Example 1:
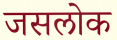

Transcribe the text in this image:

जसलोक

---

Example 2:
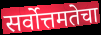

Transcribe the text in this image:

सर्वोत्तमतेचा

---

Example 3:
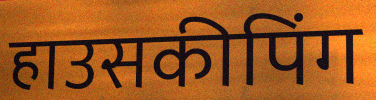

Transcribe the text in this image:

हाउसकीपिंग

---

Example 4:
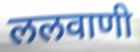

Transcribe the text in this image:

ललवाणी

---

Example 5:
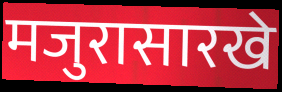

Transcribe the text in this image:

मजुरासारखे